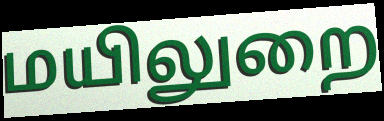
மயிலுறை